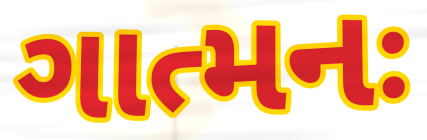
ગાત્મનઃ